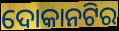
ଦୋକାନଟିର